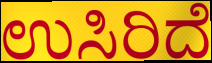
ಉಸಿರಿದೆ